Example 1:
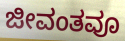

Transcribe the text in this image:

ಜೀವಂತವೂ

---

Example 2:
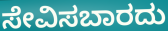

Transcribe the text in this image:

ಸೇವಿಸಬಾರದು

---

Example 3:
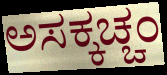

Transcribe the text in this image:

ಅಸಕ್ಕಚ್ಚಂ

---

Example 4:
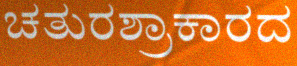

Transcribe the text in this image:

ಚತುರಶ್ರಾಕಾರದ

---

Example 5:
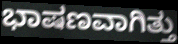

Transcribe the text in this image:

ಭಾಷಣವಾಗಿತ್ತು